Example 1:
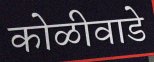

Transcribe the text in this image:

कोळीवाडे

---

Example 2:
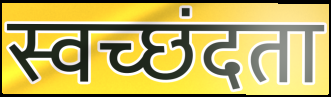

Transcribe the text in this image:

स्वच्छंदता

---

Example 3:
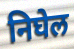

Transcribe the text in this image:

निघेल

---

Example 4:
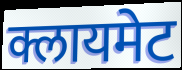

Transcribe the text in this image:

क्लायमेट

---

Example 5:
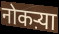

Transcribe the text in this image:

नोकऱ्‍या